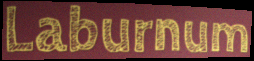
Laburnum